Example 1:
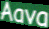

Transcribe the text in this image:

Aava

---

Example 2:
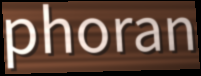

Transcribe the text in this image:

phoran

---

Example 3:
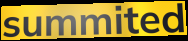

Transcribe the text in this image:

summited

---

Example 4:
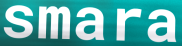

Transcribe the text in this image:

smara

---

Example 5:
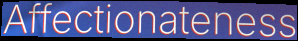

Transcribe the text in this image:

Affectionateness